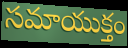
సమాయుక్తం